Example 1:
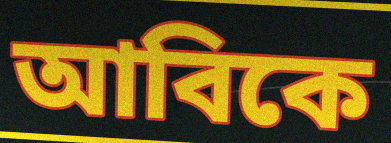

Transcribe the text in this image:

আবিকে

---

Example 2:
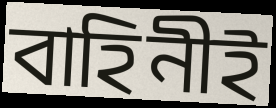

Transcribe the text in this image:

বাহিনীই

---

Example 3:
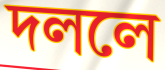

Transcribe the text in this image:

দললে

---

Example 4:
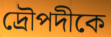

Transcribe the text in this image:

দ্রৌপদীকে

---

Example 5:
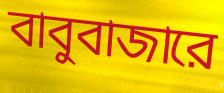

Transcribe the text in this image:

বাবুবাজারে